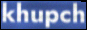
khupch